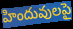
హిందువులపై